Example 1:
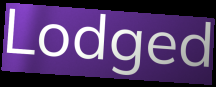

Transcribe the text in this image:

Lodged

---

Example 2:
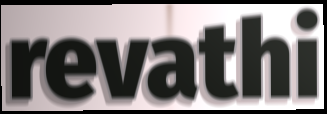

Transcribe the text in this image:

revathi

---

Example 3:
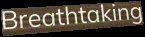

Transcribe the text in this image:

Breathtaking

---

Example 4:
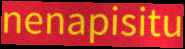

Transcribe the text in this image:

nenapisitu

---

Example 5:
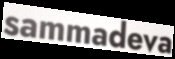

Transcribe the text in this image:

sammadeva